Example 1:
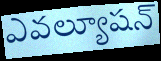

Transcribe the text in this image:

ఎవల్యూషన్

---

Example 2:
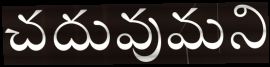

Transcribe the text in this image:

చదువుమని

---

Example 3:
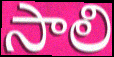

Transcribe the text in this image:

సాలి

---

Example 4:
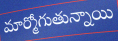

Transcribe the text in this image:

మార్మోగుతున్నాయి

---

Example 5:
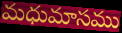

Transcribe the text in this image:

మధుమాసము